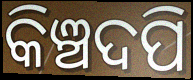
କିଞ୍ଚଦପି